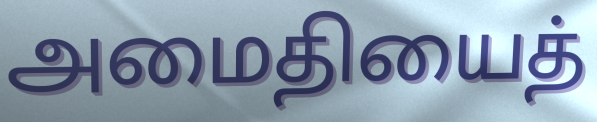
அமைதியைத்